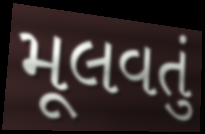
મૂલવતું